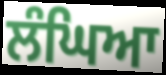
ਲੰਘਿਆ